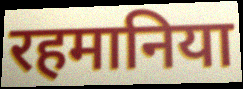
रहमानिया